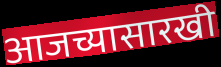
आजच्यासारखी